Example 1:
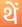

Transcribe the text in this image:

थें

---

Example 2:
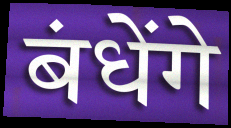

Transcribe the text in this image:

बंधेंगे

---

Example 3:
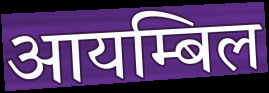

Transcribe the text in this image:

आयम्बिल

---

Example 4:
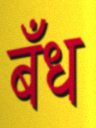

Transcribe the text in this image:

बँध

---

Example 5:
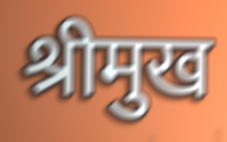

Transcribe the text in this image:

श्रीमुख